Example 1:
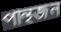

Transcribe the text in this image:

পান্থজন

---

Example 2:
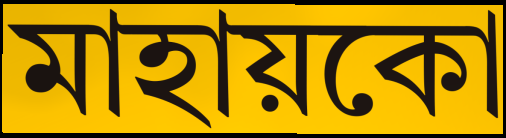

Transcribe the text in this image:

মাহায়কো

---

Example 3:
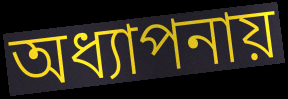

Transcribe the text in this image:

অধ্যাপনায়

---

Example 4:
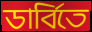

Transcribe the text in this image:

ডার্বিতে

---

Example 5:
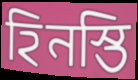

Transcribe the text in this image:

হিনস্তি